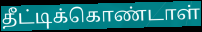
தீட்டிக்கொண்டாள்